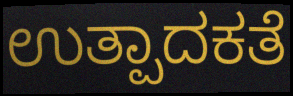
ಉತ್ಪಾದಕತೆ